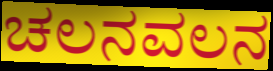
ಚಲನವಲನ